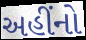
અહીંનો